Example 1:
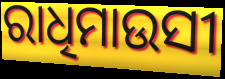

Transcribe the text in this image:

ରାଧିମାଉସୀ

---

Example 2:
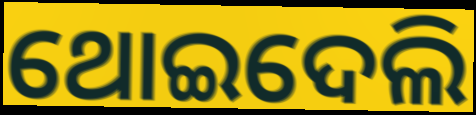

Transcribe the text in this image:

ଥୋଇଦେଲି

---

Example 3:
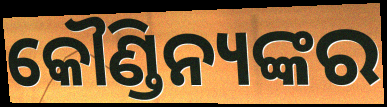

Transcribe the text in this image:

କୌଣ୍ଡିନ୍ୟଙ୍କର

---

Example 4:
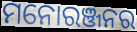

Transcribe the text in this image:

ମନୋରଞ୍ଜନର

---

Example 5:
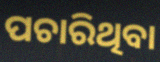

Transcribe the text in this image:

ପଚାରିଥିବା